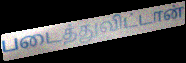
படைத்துவிட்டான்